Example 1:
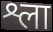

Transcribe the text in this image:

श्ला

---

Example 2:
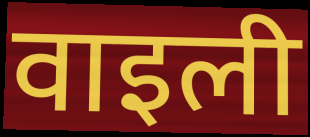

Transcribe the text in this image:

वाइली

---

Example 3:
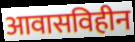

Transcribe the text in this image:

आवासविहीन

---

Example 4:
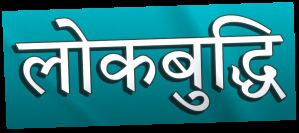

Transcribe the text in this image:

लोकबुद्धि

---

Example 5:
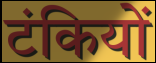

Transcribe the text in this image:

टंकियों